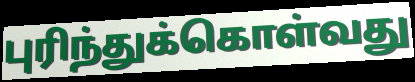
புரிந்துக்கொள்வது